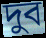
দুব